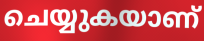
ചെയ്യുകയാണ്